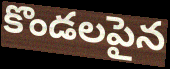
కొండలపైన